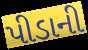
પીડાની